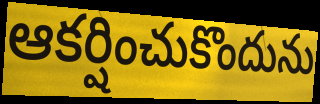
ఆకర్షించుకొందును